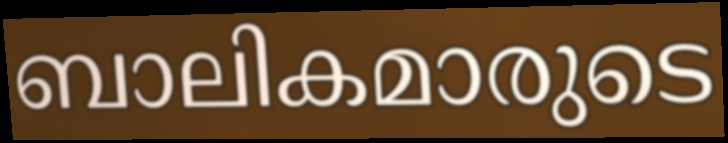
ബാലികമാരുടെ